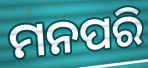
ମନପରି